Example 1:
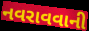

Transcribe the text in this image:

નવરાવવાની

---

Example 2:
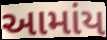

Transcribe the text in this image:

આમાંય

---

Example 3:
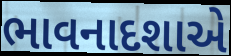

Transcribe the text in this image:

ભાવનાદશાએ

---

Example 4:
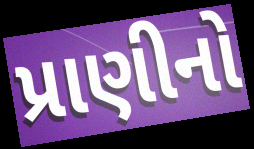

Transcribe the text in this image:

પ્રાણીનો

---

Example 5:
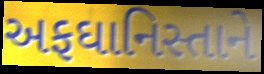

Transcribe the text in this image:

અફઘાનિસ્તાને